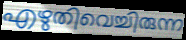
എഴുതിവെച്ചിരുന്ന